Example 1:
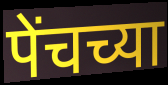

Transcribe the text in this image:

पेंचच्या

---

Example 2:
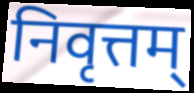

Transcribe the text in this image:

निवृत्तम्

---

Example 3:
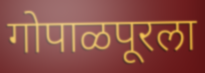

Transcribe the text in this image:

गोपाळपूरला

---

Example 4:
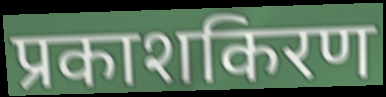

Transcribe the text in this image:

प्रकाशकिरण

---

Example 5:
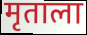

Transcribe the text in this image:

मृताला